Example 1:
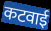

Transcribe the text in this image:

कटवाई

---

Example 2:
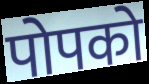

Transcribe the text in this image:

पोपको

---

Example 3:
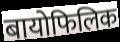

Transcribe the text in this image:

बायोफिलिक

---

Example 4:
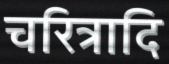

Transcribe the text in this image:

चरित्रादि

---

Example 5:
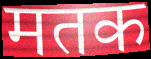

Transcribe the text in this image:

मतक